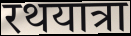
रथयात्रा